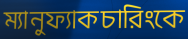
ম্যানুফ্যাকচারিংকে